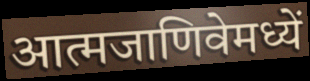
आत्मजाणिवेमध्यें